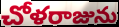
చోళరాజును